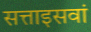
सत्ताइसवां